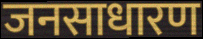
जनसाधारण